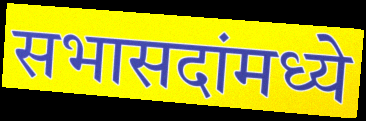
सभासदांमध्ये